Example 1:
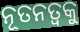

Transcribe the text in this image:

ନୂତନତ୍ବକୁ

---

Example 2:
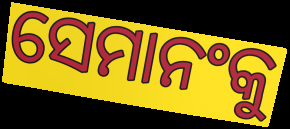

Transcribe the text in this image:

ସେମାନଂକୁ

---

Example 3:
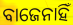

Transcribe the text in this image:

ବାଜେନାହିଁ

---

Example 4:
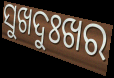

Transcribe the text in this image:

ସୁଖଦୁଃଖର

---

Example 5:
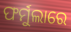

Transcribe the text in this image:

ଫର୍ମୁଲାରେ